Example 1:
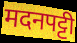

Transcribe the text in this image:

मदनपट्टी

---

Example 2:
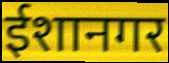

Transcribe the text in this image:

ईशानगर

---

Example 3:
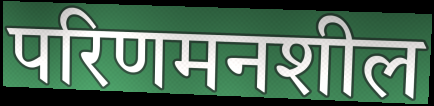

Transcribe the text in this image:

परिणमनशील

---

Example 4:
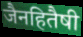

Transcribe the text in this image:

जैनहितैषी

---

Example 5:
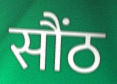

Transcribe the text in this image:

सौंठ